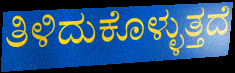
ತಿಳಿದುಕೊಳ್ಳುತ್ತದೆ